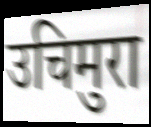
उचिमुरा